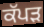
ਕੱਪੜ